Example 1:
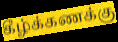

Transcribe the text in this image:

கீழ்க்கணக்கு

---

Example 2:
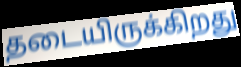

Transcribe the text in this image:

தடையிருக்கிறது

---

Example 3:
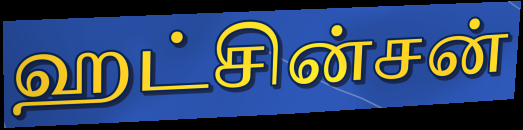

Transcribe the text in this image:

ஹட்சின்சன்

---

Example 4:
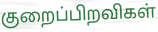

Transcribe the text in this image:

குறைப்பிறவிகள்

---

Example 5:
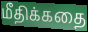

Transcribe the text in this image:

மீதிக்கதை